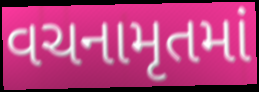
વચનામૃતમાં